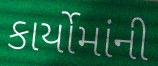
કાર્યોમાંની